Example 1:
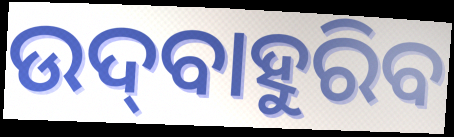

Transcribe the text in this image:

ଉଦ୍‌ବାହୁରିବ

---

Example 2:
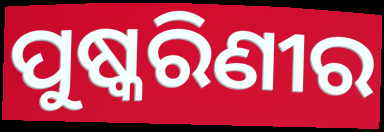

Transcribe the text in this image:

ପୁଷ୍କରିଣୀର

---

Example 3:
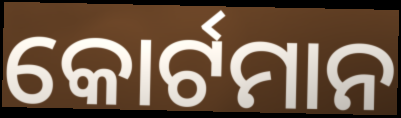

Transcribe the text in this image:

କୋର୍ଟମାନ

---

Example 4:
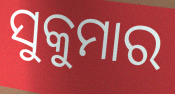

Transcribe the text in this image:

ସୁକୁମାର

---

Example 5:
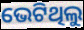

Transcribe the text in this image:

ଭେଟିଥିଲୁ